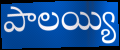
పాలయ్యి